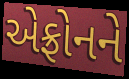
એફ્રોનને